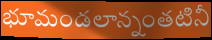
భూమండలాన్నంతటినీ